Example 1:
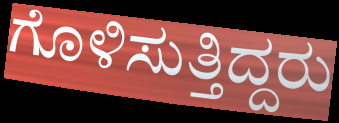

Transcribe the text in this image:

ಗೊಳಿಸುತ್ತಿದ್ದರು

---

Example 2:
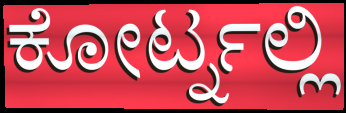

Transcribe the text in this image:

ಕೋರ್ಟ್ನಲ್ಲಿ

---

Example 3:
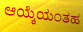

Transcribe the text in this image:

ಆಯ್ಕೆಯಂತಹ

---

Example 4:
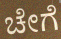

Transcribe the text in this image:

ಚೇಗೆ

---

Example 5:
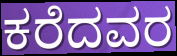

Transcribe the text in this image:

ಕರೆದವರ